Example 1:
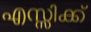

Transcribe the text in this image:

എസ്സിക്ക്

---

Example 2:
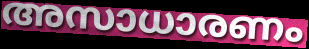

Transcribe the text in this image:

അസാധാരണം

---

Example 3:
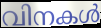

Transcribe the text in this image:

വിനകൾ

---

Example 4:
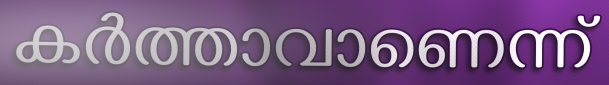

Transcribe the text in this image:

കർത്താവാണെന്ന്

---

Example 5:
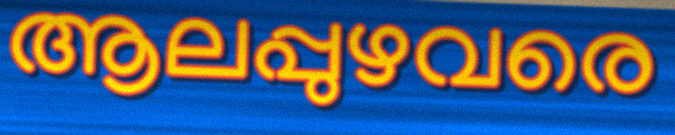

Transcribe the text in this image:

ആലപ്പുഴവരെ